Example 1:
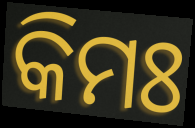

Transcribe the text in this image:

କିମଃ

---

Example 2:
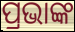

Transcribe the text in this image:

ପ୍ରଭାଙ୍କ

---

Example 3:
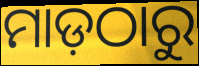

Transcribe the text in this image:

ମାଡ଼ଠାରୁ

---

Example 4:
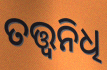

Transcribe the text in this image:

ତତ୍ତ୍ଵନିଧି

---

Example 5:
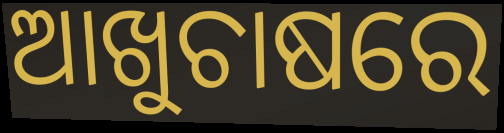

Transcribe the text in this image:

ଆଖୁଚାଷରେ